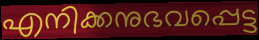
എനിക്കനുഭവപ്പെട്ട